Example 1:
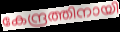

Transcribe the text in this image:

കേന്ദ്രത്തിനായി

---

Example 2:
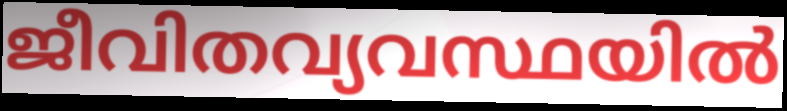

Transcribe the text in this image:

ജീവിതവ്യവസ്ഥയിൽ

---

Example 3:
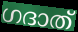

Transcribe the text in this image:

ഗദാത്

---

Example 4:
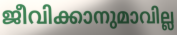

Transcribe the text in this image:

ജീവിക്കാനുമാവില്ല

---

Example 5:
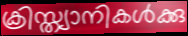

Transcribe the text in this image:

ക്രിസ്ത്യാനികൾക്കു